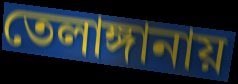
তেলাঙ্গানায়